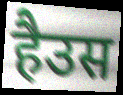
हैउस